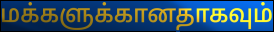
மக்களுக்கானதாகவும்